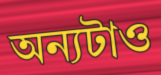
অন্যটাও